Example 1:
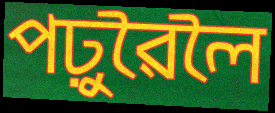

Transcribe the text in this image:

পঢ়ুৱৈলৈ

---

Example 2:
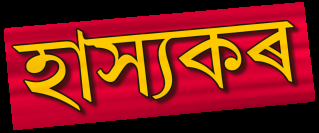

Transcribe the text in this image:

হাস্যকৰ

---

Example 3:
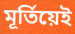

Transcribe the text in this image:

মূৰ্তিয়েই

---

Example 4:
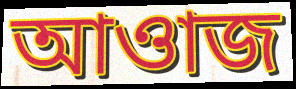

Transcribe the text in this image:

আওাজ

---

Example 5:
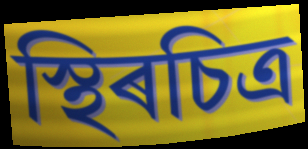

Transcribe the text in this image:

স্থিৰচিত্ৰ